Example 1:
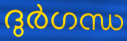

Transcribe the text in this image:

ദുർഗന്ധ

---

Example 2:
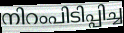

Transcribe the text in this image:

നിറംപിടിപ്പിച്ച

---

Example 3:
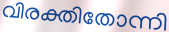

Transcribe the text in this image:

വിരക്തിതോന്നി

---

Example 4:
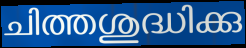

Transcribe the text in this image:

ചിത്തശുദ്ധിക്കു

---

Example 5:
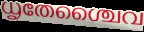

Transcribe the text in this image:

ധൃതേശ്ചൈവ